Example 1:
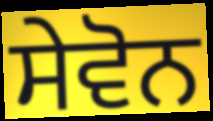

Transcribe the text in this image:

ਸੇਵੋਨ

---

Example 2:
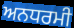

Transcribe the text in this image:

ਅਨਧਰਮੀ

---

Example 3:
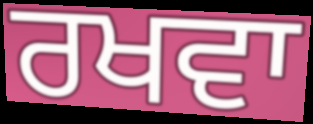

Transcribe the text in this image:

ਰਖਵਾ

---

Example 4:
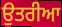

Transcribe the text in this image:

ਉਤਰੀਆ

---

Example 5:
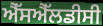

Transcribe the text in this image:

ਐੱਸਐੱਲਡੀਸੀ